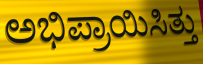
ಅಭಿಪ್ರಾಯಿಸಿತ್ತು